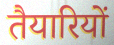
तैयारियों